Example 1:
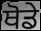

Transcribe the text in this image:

ਥੋਡੇ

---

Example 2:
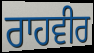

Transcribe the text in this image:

ਰਾਹਵੀਰ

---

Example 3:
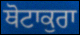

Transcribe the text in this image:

ਥੋਟਾਕੁਰਾ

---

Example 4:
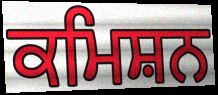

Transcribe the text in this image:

ਕਮਿਸ਼ਨ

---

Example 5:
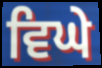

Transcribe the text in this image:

ਵਿਘੇ